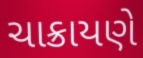
ચાક્રાયણે